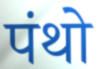
पंथो